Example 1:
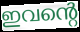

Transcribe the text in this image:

ഇവന്റെ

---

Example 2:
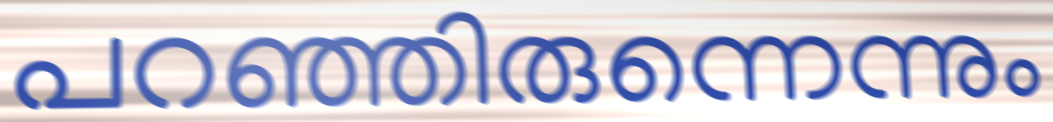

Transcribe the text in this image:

പറഞ്ഞിരുന്നെന്നും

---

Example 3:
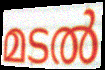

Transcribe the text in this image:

മടൽ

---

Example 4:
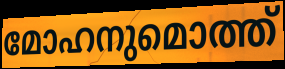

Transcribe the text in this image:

മോഹനുമൊത്ത്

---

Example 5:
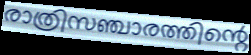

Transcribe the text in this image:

രാത്രിസഞ്ചാരത്തിന്റെ